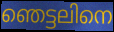
ഞെട്ടലിനെ